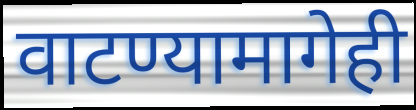
वाटण्यामागेही